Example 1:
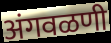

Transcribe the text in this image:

अंगवळणी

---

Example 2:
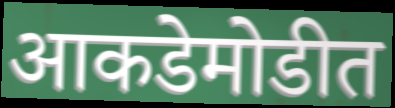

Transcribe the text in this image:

आकडेमोडीत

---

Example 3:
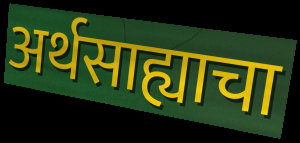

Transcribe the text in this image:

अर्थसाह्याचा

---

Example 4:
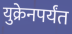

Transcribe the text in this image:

युक्रेनपर्यंत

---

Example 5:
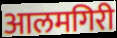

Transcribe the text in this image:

आलमगिरी